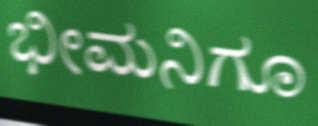
ಭೀಮನಿಗೂ